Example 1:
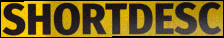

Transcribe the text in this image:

SHORTDESC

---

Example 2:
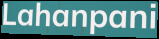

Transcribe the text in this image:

Lahanpani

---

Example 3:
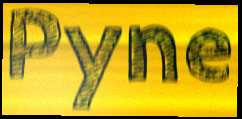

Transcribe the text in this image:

Pyne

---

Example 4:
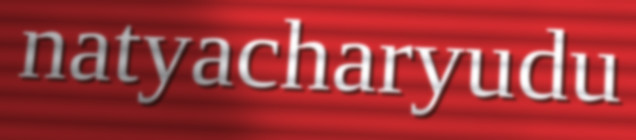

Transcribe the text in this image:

natyacharyudu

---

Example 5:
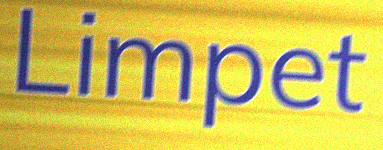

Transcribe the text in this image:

Limpet